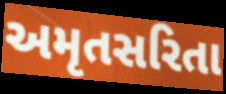
અમૃતસરિતા